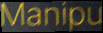
Manipu